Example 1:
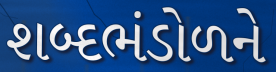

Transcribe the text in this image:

શબ્દભંડોળને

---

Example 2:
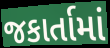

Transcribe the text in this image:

જકાર્તામાં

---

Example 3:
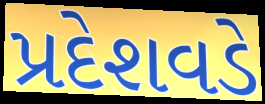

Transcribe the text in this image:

પ્રદેશવડે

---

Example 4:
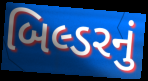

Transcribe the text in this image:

બિલ્ડરનું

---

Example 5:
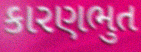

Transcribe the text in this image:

કારણભુત